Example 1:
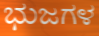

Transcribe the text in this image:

ಭುಜಗಳ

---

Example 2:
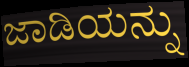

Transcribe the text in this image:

ಜಾಡಿಯನ್ನು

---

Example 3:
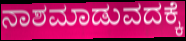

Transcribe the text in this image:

ನಾಶಮಾಡುವದಕ್ಕೆ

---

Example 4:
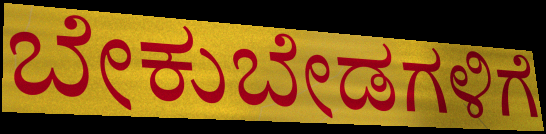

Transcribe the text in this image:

ಬೇಕುಬೇಡಗಳಿಗೆ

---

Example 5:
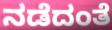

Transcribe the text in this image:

ನಡೆದಂತೆ